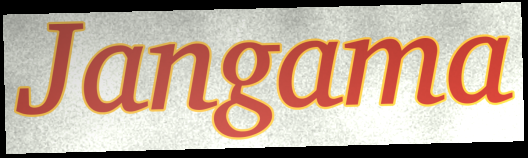
Jangama